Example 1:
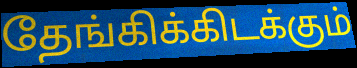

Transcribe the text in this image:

தேங்கிக்கிடக்கும்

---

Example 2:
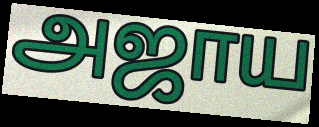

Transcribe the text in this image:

அஜாய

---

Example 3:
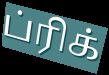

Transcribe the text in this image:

ப்ரிக்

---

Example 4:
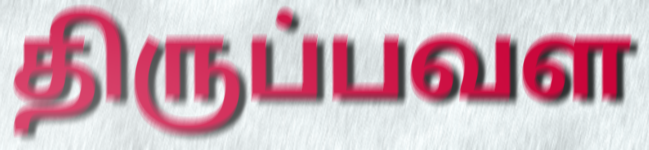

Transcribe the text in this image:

திருப்பவள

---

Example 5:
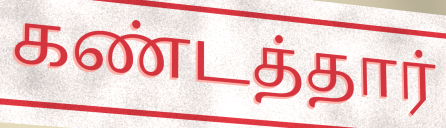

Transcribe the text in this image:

கண்டத்தார்